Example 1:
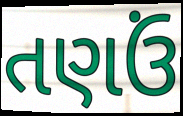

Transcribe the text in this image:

તણઉં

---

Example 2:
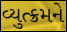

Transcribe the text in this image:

વ્યુત્ક્રમને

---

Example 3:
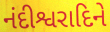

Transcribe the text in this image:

નંદીશ્વરાદિને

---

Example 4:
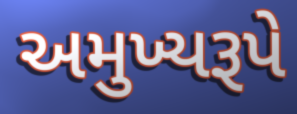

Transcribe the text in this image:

અમુખ્યરૂપે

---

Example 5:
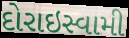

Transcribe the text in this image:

દોરાઇસ્વામી